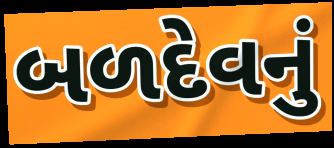
બળદેવનું